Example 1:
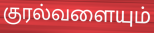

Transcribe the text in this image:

குரல்வளையும்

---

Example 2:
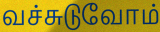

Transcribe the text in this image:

வச்சுடுவோம்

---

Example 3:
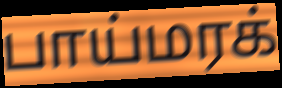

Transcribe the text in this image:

பாய்மரக்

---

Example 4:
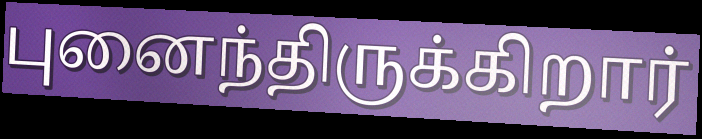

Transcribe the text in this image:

புனைந்திருக்கிறார்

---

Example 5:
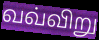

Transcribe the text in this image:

வவ்விறு